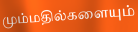
மும்மதில்களையும்